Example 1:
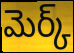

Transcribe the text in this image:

మెర్క్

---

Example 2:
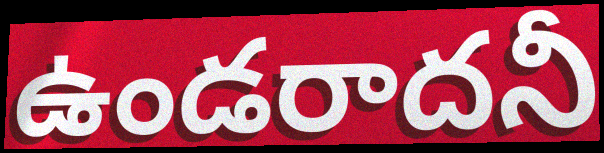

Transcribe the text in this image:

ఉండరాదనీ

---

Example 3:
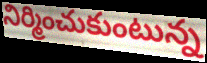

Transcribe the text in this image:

నిర్మించుకుంటున్న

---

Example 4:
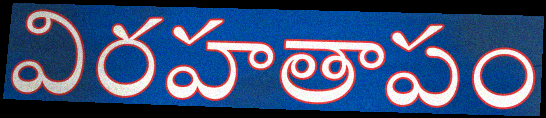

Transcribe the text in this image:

విరహతాపం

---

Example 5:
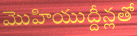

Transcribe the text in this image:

మొహియుద్దీన్లతో